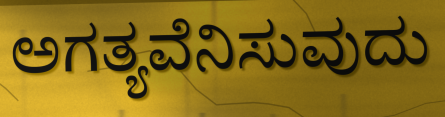
ಅಗತ್ಯವೆನಿಸುವುದು